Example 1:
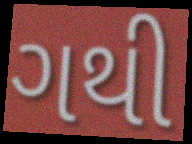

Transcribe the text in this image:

ગથી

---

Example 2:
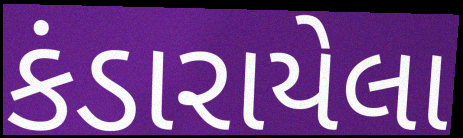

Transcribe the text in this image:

કંડારાયેલા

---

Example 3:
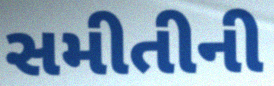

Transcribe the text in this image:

સમીતીની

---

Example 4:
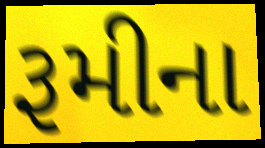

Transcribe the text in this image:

રૂમીના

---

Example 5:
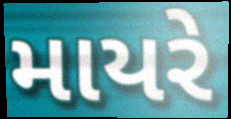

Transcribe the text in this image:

માયરે